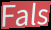
Fals